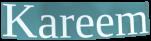
Kareem